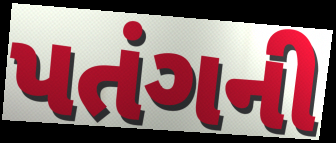
પતંગની